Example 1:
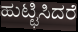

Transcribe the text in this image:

ಹುಟ್ಟಿಸಿದರೆ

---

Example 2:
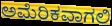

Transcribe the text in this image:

ಅಮೆರಿಕವಾಗಲಿ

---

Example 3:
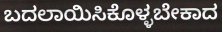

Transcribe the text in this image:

ಬದಲಾಯಿಸಿಕೊಳ್ಳಬೇಕಾದ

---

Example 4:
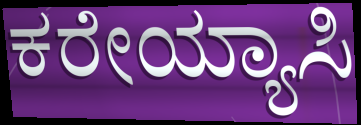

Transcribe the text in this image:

ಕರೇಯ್ಯಾಸಿ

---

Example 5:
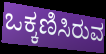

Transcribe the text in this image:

ಒಕ್ಕಣಿಸಿರುವ